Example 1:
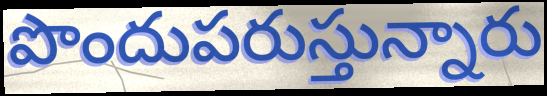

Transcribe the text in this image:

పొందుపరుస్తున్నారు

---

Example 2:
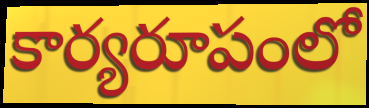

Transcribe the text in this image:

కార్యరూపంలో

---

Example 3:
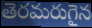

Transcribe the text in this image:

తెరమరుగైన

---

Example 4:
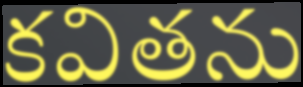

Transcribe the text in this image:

కవితను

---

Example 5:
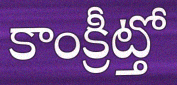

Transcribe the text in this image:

కాంక్రీట్తో